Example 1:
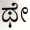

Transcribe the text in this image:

ಥೇ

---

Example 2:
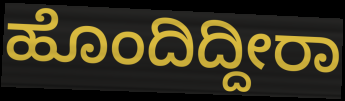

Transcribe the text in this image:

ಹೊಂದಿದ್ದೀರಾ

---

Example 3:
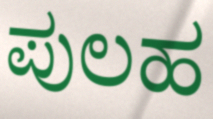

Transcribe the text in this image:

ಪುಲಹ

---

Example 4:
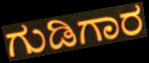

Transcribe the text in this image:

ಗುಡಿಗಾರ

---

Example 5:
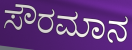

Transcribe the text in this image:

ಸೌರಮಾನ